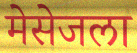
मेसेजला